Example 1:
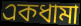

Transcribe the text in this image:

একধামা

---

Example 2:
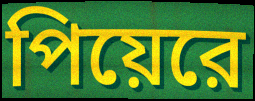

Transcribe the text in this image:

পিয়েরে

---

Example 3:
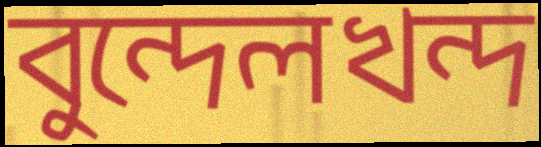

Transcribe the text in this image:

বুন্দেলখন্দ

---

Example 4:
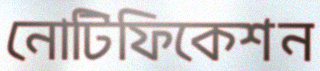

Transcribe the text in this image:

নোটিফিকেশন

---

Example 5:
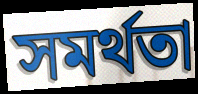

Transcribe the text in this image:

সমর্থতা